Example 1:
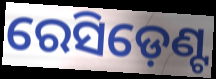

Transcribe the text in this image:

ରେସିଡ଼େଣ୍ଟ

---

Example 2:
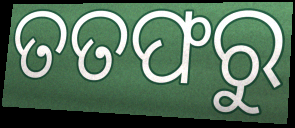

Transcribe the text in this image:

ତତଫରୁ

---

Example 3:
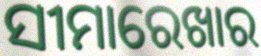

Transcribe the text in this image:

ସୀମାରେଖାର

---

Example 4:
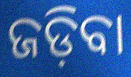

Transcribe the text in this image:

ଜଡ଼ିବା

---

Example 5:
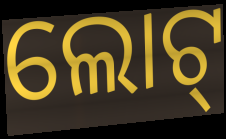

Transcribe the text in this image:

ଲୋଟ୍